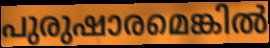
പുരുഷാരമെങ്കിൽ